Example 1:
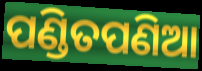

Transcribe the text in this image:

ପଣ୍ଡିତପଣିଆ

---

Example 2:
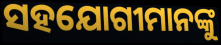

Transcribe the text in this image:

ସହଯୋଗୀମାନଙ୍କୁ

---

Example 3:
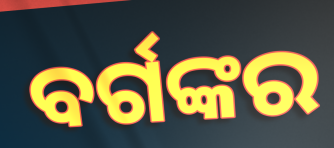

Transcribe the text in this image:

ବର୍ଗଙ୍କର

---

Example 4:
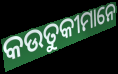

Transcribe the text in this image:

କଉତୁକୀମାନେ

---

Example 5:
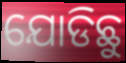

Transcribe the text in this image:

ଯୋଡିଛୁ